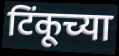
टिंकूच्या